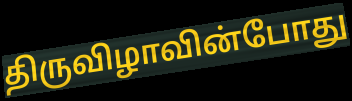
திருவிழாவின்போது